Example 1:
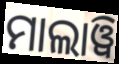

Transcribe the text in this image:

ମାଲାୱି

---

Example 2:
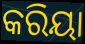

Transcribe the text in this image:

କରିୟା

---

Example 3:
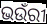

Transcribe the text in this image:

ଭଉଁରୀ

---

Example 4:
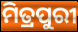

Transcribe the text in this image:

ମିତ୍ରପୁରୀ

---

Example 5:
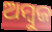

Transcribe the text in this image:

ଅମ୍ୱୁଜ